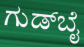
ಗುಡ್‌ಬೈ